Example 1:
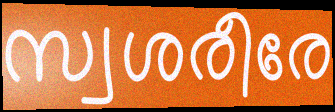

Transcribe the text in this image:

സ്വശരീരേ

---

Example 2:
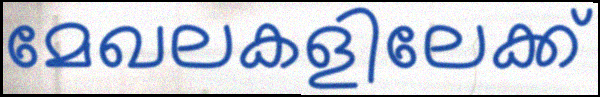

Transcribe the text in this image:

മേഖലകളിലേക്ക്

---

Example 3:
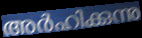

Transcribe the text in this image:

അർഹിക്കുന്നു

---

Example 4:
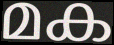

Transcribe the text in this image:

മക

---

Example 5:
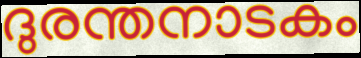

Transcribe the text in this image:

ദുരന്തനാടകം